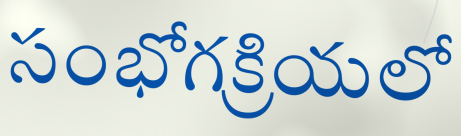
సంభోగక్రియలో